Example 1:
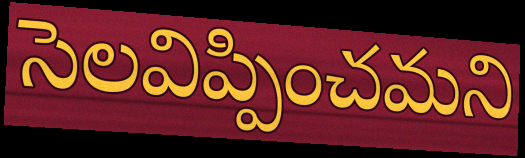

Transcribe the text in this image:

సెలవిప్పించమని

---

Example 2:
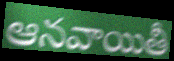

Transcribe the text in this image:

ఆనవాయితీ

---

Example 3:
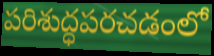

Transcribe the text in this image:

పరిశుద్ధపరచడంలో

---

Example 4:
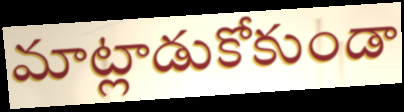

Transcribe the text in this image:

మాట్లాడుకోకుండా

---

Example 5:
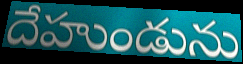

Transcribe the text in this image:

దేహుండును